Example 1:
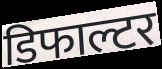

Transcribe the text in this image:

डिफाल्टर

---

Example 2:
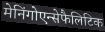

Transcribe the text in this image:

मेनिंगोएन्सेफैलिटिक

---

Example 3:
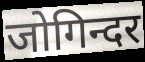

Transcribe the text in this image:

जोगिन्दर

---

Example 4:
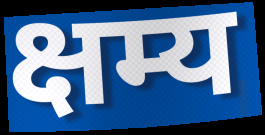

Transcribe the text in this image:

क्षम्य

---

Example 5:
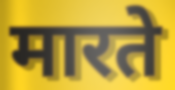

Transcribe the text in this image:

मारते